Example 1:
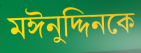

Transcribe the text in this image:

মঈনুদ্দিনকে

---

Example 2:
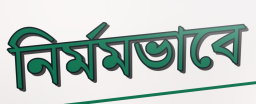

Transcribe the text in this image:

নির্মমভাবে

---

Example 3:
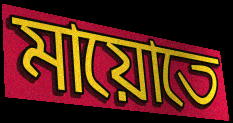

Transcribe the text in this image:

মায়োতে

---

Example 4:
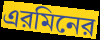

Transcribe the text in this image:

এরমিনের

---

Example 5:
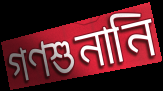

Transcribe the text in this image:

গণশুনানি